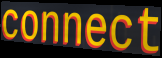
connect